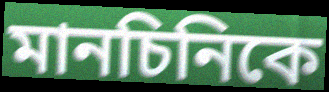
মানচিনিকে